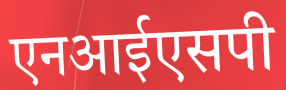
एनआईएसपी